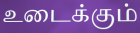
உடைக்கும்